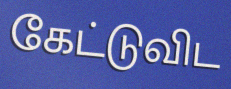
கேட்டுவிட